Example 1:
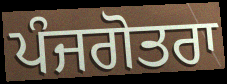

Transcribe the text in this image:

ਪੰਜਗੋਤਰਾ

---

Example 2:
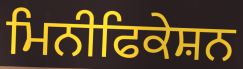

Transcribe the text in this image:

ਮਿਨੀਫਿਕੇਸ਼ਨ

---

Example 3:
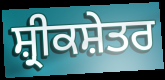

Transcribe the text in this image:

ਸ਼੍ਰੀਕਸ਼ੇਤਰ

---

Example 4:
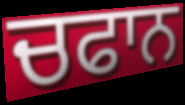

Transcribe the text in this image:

ਚਫਾਨ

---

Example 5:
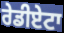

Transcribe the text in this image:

ਰੇਡੀਏਟਾ